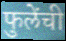
फुलेंची